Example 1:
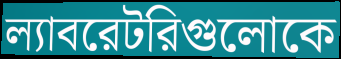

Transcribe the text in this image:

ল্যাবরেটরিগুলোকে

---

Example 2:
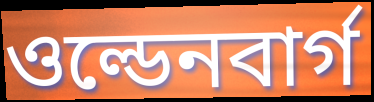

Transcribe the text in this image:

ওল্ডেনবার্গ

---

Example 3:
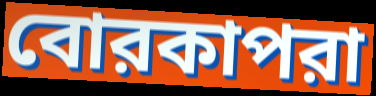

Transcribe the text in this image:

বোরকাপরা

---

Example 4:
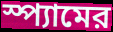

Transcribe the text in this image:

স্প্যামের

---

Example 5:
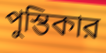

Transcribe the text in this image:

পুস্তিকার